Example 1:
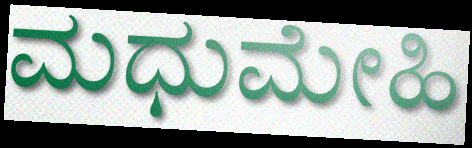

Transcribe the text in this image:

ಮಧುಮೇಹಿ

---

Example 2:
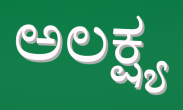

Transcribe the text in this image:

ಅಲಕ್ಷ್ಯ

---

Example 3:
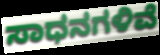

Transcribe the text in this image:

ಸಾಧನಗಳಿವೆ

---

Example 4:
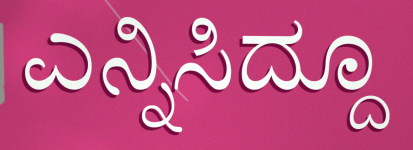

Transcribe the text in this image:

ಎನ್ನಿಸಿದ್ದೂ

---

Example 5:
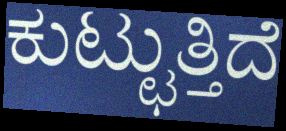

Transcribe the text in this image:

ಕುಟ್ಟುತ್ತಿದೆ